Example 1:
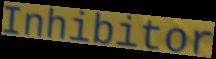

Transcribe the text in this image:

Inhibitor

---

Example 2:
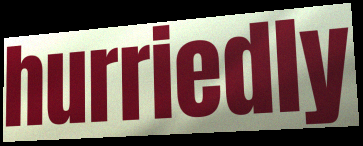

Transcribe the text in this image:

hurriedly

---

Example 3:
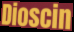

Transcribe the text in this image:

Dioscin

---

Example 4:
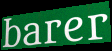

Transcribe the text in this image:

barer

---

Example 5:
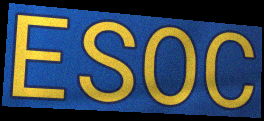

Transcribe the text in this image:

ESOC